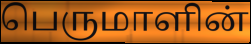
பெருமாளின்